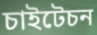
চাইটেচন